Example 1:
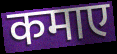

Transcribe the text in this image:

कमाए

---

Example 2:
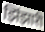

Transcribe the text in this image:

झिंझारी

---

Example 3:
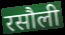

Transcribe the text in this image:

रसौली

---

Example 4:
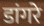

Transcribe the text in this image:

डांगरे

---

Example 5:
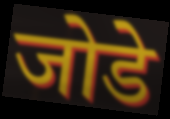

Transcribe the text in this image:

जोडे